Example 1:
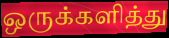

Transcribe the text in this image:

ஒருக்களித்து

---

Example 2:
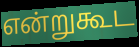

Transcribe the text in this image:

என்றுகூட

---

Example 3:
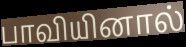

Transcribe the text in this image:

பாவியினால்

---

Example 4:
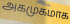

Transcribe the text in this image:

அகமுகமாக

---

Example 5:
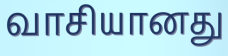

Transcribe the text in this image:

வாசியானது